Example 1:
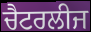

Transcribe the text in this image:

ਚੈਟਰਲੀਜ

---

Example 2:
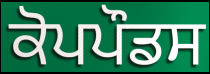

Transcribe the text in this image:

ਕੋਪਪੌਡਸ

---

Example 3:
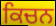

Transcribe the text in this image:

ਕਿਚਨ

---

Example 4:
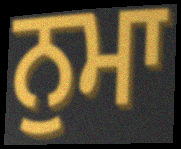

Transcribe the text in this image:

ਨੁਮਾ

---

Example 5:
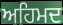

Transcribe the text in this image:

ਅਹਿਮਦ